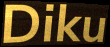
Diku